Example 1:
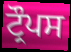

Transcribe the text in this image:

ਟ੍ਰੌਪਸ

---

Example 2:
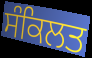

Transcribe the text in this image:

ਸੰਕਿਲਤ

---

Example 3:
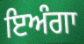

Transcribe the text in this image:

ਇਅੰਗਾ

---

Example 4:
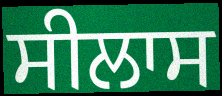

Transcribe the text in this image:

ਸੀਲਾਸ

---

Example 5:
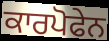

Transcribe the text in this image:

ਕਾਰਪੋਫੇਨ